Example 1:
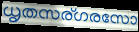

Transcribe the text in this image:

ധൃതസര്ഗരസോ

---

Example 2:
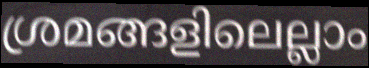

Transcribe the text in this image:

ശ്രമങ്ങളിലെല്ലാം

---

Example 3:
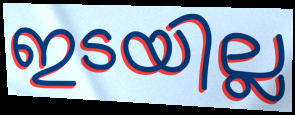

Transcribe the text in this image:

ഇടയില്ല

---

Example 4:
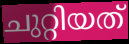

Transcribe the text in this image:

ചുറ്റിയത്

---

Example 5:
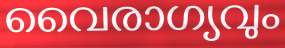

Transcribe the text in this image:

വൈരാഗ്യവും